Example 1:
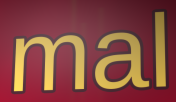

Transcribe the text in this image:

mal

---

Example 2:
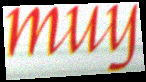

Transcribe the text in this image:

muy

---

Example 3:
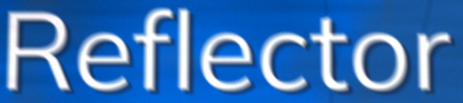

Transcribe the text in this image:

Reflector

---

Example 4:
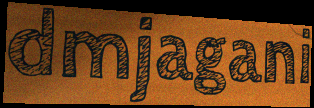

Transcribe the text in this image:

dmjagani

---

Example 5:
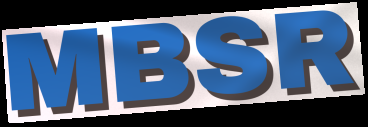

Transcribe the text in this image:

MBSR